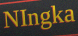
NIngka